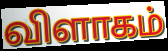
விளாகம்